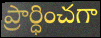
ప్రార్ధించగా